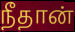
நீதான்